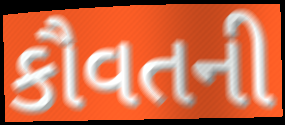
કૌવતની